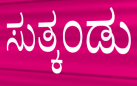
ಸುತ್ಕಂಡು